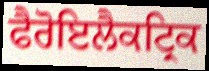
ਫੈਰੋਇਲੈਕਟ੍ਰਿਕ